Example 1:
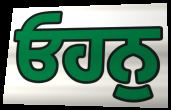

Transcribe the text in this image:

ਓਹਨੁ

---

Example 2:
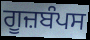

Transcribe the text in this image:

ਗੂਜ਼ਬੰਪਸ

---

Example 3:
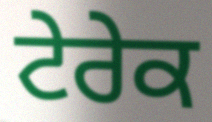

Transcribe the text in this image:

ਟੇਰੇਕ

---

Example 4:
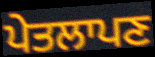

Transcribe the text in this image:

ਪੇਤਲਾਪਣ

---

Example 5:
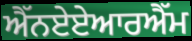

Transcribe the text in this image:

ਐੱਨਏਏਆਰਐੱਮ